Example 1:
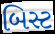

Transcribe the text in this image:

બિસ્ટ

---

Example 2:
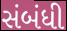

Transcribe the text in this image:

સંબંધી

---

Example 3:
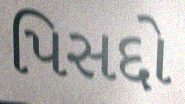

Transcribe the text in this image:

પિસદ્દો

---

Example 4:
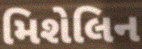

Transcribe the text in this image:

મિશેલિન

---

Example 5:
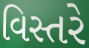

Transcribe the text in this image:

વિસ્તરે